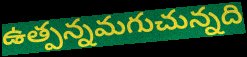
ఉత్పన్నమగుచున్నది